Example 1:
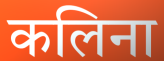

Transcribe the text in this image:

कलिना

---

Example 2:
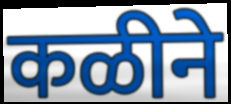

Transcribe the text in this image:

कळीने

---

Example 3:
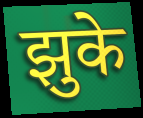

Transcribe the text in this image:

झुके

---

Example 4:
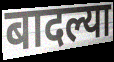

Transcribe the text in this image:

बादल्या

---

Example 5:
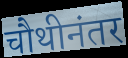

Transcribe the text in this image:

चौथीनंतर